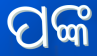
ପଙ୍କ